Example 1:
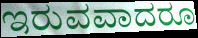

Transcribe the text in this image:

ಇರುವವಾದರೂ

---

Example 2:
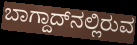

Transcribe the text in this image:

ಬಾಗ್ದಾದ್‌ನಲ್ಲಿರುವ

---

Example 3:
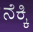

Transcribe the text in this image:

ನೆಕ್ಕಿ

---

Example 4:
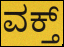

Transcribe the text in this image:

ವಕ್ತ್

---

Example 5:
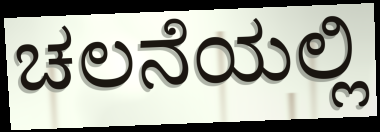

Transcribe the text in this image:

ಚಲನೆಯಲ್ಲಿ